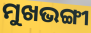
ମୁଖଭଙ୍ଗୀ